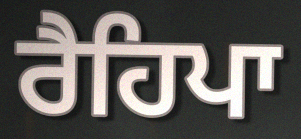
ਰੈਹਿਪਾ